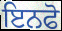
ਇਨਫੋ